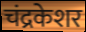
चंद्रकेशर